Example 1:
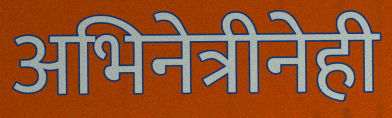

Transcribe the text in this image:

अभिनेत्रीनेही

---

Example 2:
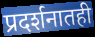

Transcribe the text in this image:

प्रदर्शनातही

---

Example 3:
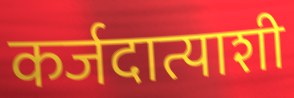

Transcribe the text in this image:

कर्जदात्याशी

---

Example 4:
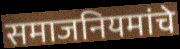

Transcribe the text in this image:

समाजनियमांचे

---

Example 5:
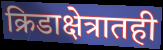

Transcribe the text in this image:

क्रिडाक्षेत्रातही